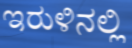
ಇರುಳಿನಲ್ಲಿ